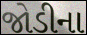
જોડીના